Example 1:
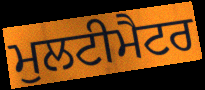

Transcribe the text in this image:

ਮੁਲਟੀਮੈਟਰ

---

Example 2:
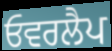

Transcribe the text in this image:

ਓਵਰਲੈਪ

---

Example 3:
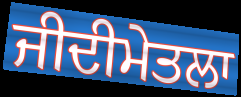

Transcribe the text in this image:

ਜੀਦੀਮੇਤਲਾ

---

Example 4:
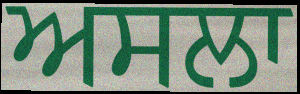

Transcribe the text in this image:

ਅਸਲਾ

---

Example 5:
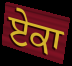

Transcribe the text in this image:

ਏਕਾ